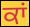
ਕਾਂ